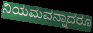
ನಿಯಮವನ್ನಾದರೂ